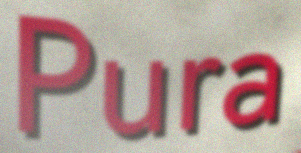
Pura